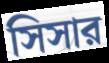
সিসার